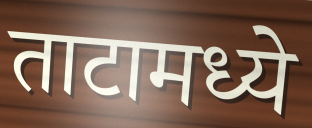
ताटामध्ये